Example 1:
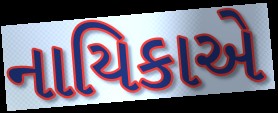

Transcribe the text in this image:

નાયિકાએ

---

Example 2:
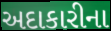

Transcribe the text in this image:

અદાકારીના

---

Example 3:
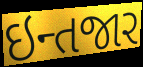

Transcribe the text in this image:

ઇન્તજાર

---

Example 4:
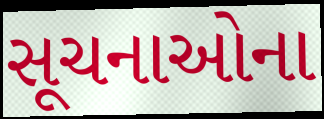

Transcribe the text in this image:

સૂચનાઓના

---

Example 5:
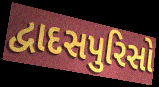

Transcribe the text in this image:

દ્વાદસપુરિસો